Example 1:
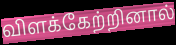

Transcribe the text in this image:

விளக்கேற்றினால்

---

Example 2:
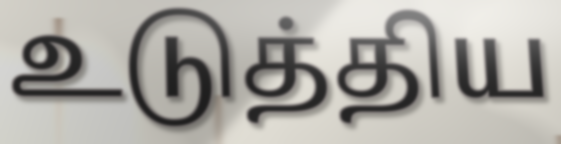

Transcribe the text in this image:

உடுத்திய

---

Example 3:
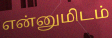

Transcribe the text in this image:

என்னுமிடம்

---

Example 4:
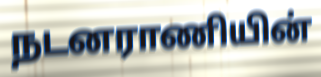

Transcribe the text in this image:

நடனராணியின்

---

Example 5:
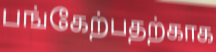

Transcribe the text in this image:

பங்கேற்பதற்காக